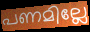
പണമില്ലേ